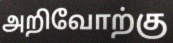
அறிவோற்கு